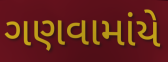
ગણવામાંયે